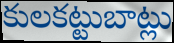
కులకట్టుబాట్లు